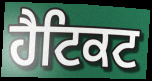
ਹੈਟਿਕਟ